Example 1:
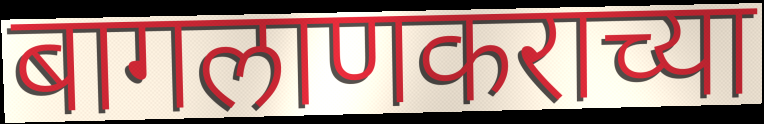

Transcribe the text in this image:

बागलाणकराच्या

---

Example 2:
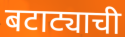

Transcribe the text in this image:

बटाट्याची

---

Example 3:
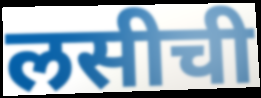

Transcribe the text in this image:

लसीची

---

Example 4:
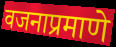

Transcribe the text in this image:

वजनाप्रमाणे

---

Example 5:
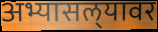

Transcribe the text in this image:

अभ्यासल्यावर